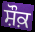
ਸ਼ੌਕ਼